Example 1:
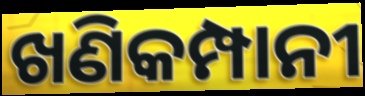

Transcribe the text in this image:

ଖଣିକମ୍ପାନୀ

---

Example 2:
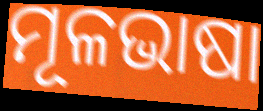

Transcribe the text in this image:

ମୂଳଭାଷା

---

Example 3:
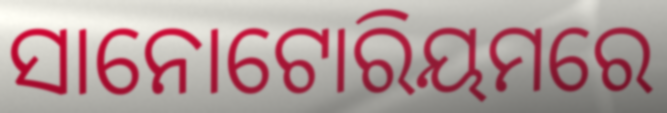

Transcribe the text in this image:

ସାନୋଟୋରିୟମରେ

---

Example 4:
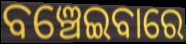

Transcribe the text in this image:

ବଞ୍ଚେଇବାରେ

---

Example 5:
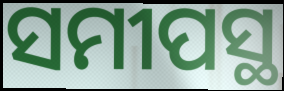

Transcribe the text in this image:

ସମୀପସ୍ଥ